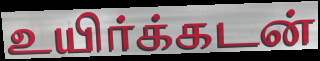
உயிர்க்கடன்